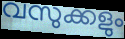
വസുക്കളും